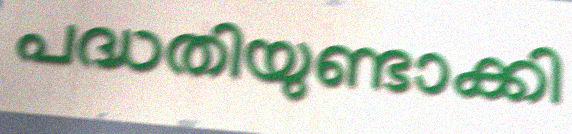
പദ്ധതിയുണ്ടാക്കി